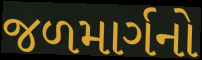
જળમાર્ગનો